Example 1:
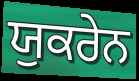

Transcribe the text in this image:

ਯੁਕਰੇਨ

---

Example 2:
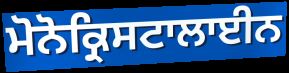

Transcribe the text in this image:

ਮੋਨੋਕ੍ਰਿਸਟਾਲਾਈਨ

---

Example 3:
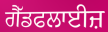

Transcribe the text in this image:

ਗੈੱਡਫਲਾਈਜ਼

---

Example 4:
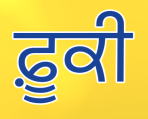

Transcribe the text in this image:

ਫ਼ੂਕੀ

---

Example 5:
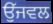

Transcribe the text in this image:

ਉੱਜਵਲ